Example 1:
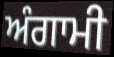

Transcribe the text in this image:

ਅੰਗਾਮੀ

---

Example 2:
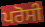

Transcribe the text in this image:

ਪਰੋਸੀ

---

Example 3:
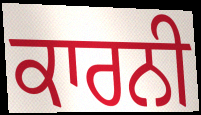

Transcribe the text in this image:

ਕਾਰਨੀ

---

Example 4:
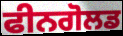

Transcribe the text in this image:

ਫੀਨਗੋਲਡ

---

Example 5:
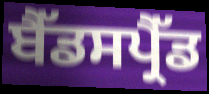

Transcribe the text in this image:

ਬੈੱਡਸਪ੍ਰੈੱਡ